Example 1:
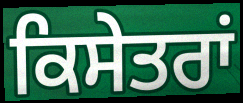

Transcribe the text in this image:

ਕਿਸੇਤਰਾਂ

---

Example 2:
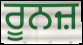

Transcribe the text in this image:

ਰੂਨਜ਼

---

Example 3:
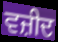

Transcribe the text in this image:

ਵਜ਼ੀਦ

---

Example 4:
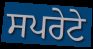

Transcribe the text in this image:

ਸਪਰੇਟੇ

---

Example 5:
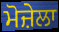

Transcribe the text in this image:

ਮੋਜ਼ੇਲਾ